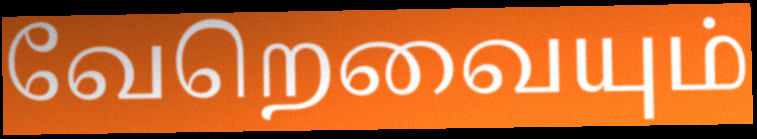
வேறெவையும்